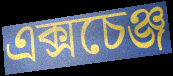
এক্সচেঞ্জ